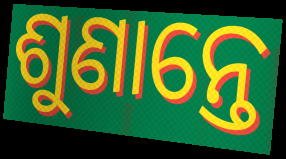
ଶୁଣାନ୍ତେ